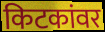
किटकांवर